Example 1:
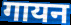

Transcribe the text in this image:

गायन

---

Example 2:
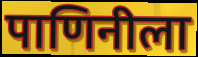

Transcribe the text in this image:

पाणिनीला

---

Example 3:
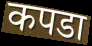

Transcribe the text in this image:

कपडा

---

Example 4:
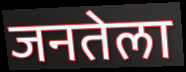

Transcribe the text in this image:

जनतेला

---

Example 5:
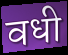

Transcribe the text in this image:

वधी